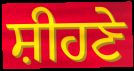
ਸ਼ੀਹਣੇ